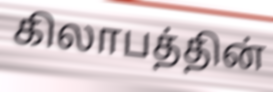
கிலாபத்தின்